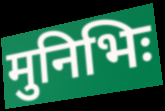
मुनिभिः